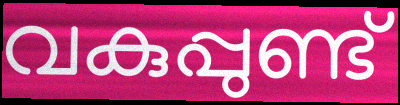
വകുപ്പുണ്ട്